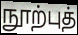
நூற்புத்